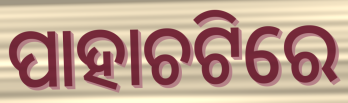
ପାହାଚଟିରେ